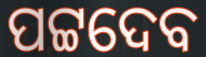
ପଟ୍ଟଦେବ